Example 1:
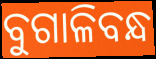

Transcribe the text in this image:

ବୁଗାଳିବନ୍ଧ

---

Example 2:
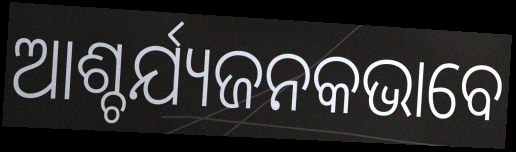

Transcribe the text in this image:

ଆଶ୍ଚର୍ଯ୍ୟଜନକଭାବେ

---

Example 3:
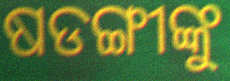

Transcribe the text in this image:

ଷଡଙ୍ଗୀଙ୍କୁ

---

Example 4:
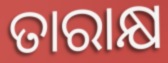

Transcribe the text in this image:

ତାରାକ୍ଷ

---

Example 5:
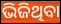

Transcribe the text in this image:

ଭିଜିଥିବା